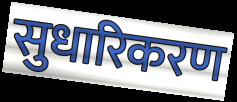
सुधारिकरण